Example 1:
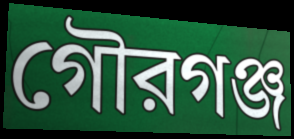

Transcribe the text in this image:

গৌরগঞ্জ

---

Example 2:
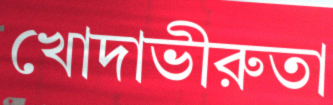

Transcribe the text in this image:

খোদাভীরুতা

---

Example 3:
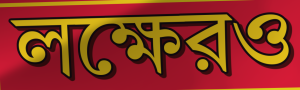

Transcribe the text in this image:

লক্ষেরও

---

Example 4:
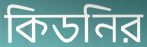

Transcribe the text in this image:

কিডনির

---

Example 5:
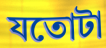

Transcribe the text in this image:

যতোটা